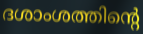
ദശാംശത്തിന്റെ